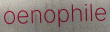
oenophile